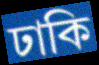
ঢাকি